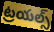
ట్రయల్స్